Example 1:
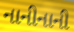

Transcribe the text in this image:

નાનીનાની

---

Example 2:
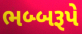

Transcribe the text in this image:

ભબ્બરૂપે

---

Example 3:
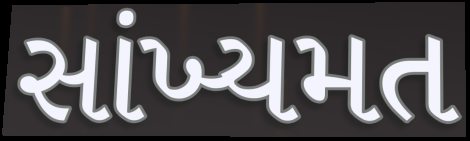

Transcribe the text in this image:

સાંખ્યમત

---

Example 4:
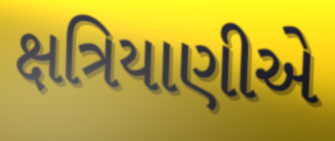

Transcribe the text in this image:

ક્ષત્રિયાણીએ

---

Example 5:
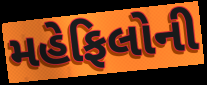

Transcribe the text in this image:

મહેફિલોની